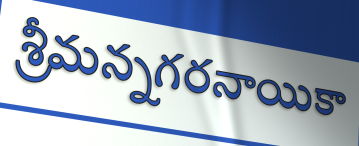
శ్రీమన్నగరనాయికా